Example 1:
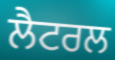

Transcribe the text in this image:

ਲੈਟਰਲ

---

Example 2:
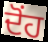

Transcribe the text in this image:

ਦੋਂਹ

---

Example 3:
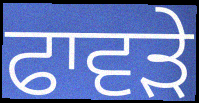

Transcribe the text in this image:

ਫਾਵੜੇ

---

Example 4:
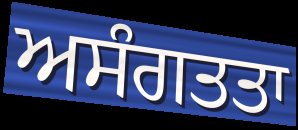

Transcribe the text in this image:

ਅਸੰਗਤਤਾ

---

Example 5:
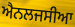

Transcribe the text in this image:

ਐਨਲਜਸੀਆ